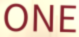
ONE